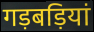
गड़बड़ियां